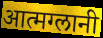
आत्मग्लानी